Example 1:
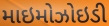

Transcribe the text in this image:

માઇમોઝોઇડી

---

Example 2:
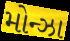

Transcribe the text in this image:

મોન્ઝા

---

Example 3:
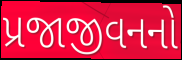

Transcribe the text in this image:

પ્રજાજીવનનો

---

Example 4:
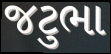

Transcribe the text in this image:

જટુભા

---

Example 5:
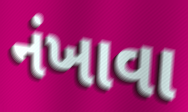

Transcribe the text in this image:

નંખાવા